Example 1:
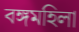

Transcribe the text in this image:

বঙ্গমহিলা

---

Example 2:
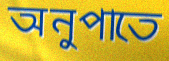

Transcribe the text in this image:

অনুপাতে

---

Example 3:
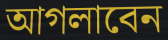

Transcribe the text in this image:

আগলাবেন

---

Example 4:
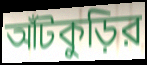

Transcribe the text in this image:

আঁটকুড়ির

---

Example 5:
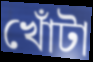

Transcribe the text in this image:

খোঁটা